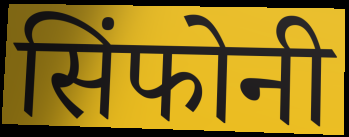
सिंफोनी